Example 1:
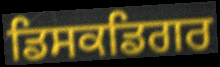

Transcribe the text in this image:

ਡਿਸਕਡਿਗਰ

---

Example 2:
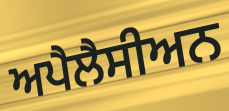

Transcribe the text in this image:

ਅਪੈਲੈਸੀਅਨ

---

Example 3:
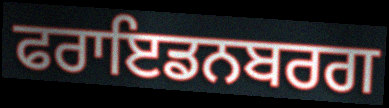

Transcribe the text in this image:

ਫਰਾਇਡਨਬਰਗ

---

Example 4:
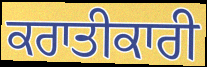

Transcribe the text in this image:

ਕਰਾਤੀਕਾਰੀ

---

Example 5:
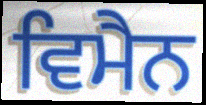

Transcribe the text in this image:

ਵਿਮੈਨ